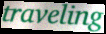
traveling